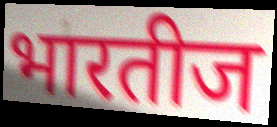
भारतीज